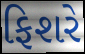
ફિશરે